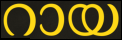
റായ